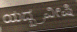
ಯದ್ಬ್ರವೀಷಿ